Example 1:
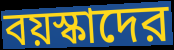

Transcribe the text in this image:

বয়স্কাদের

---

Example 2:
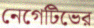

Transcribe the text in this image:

নেগেটিভের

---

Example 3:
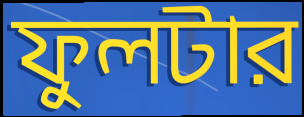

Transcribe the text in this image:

ফুলটার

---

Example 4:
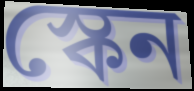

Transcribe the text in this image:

স্কেন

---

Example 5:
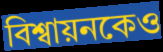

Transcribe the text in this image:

বিশ্বায়নকেও